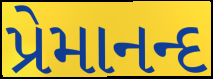
પ્રેમાનન્દ